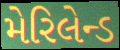
મેરિલેન્ડ